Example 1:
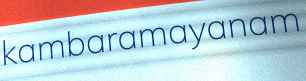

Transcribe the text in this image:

kambaramayanam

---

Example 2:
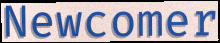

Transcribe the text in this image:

Newcomer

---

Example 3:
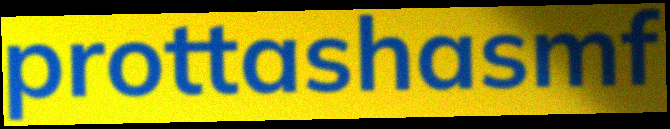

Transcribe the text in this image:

prottashasmf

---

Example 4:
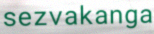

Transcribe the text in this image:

sezvakanga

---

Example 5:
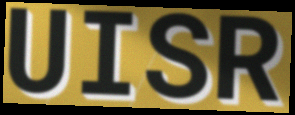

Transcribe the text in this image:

UISR